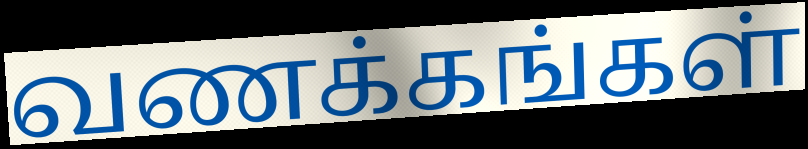
வணக்கங்கள்